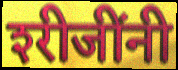
श्रीजींनी